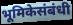
भूमिकेसंबंधी